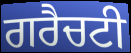
ਗਰੈਚਟੀ